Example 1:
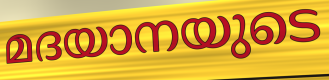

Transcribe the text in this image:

മദയാനയുടെ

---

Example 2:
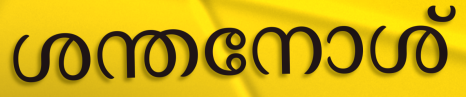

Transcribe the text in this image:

ശന്തനോശ്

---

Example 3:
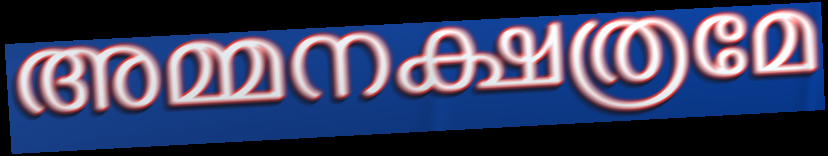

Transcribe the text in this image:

അമ്മനക്ഷത്രമേ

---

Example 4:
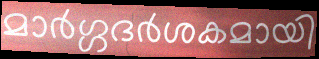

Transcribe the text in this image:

മാർഗ്ഗദർശകമായി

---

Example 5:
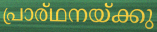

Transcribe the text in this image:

പ്രാര്ഥനയ്ക്കു